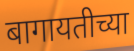
बागायतीच्या